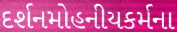
દર્શનમોહનીયકર્મના